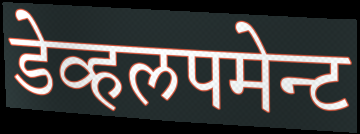
डेव्हलपमेन्ट